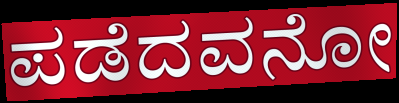
ಪಡೆದವನೋ